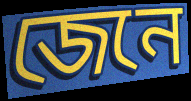
জেনে